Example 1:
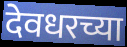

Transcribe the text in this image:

देवधरच्या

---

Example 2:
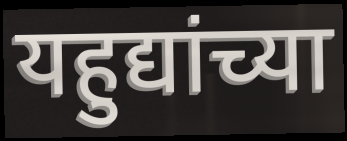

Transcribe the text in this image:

यहुद्यांच्या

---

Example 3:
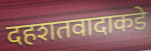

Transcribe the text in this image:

दहशतवादाकडे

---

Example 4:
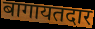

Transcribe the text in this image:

बागायतदार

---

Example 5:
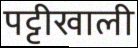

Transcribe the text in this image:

पट्टीखाली